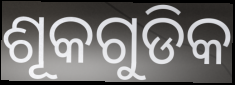
ଶୂକଗୁଡିକ